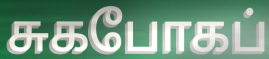
சுகபோகப்